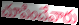
చూపించేవారు